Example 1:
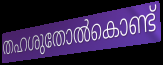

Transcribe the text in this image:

തഹശുതോൽകൊണ്ട്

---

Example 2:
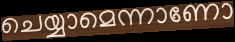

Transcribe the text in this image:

ചെയ്യാമെന്നാണോ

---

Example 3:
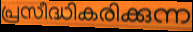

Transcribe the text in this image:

പ്രസീദ്ധികരിക്കുന്ന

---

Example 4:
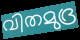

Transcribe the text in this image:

വിതമുദ്ര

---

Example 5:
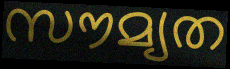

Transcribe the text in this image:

സൗമ്യത